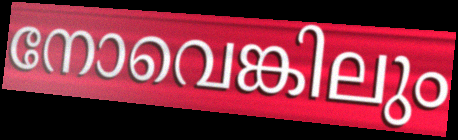
നോവെങ്കിലും